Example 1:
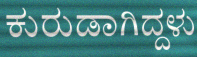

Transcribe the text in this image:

ಕುರುಡಾಗಿದ್ದಳು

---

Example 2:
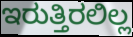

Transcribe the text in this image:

ಇರುತ್ತಿರಲಿಲ್ಲ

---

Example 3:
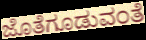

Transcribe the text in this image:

ಜೊತೆಗೂಡುವಂತೆ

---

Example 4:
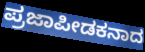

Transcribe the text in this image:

ಪ್ರಜಾಪೀಡಕನಾದ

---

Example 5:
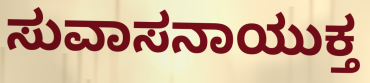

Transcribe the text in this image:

ಸುವಾಸನಾಯುಕ್ತ